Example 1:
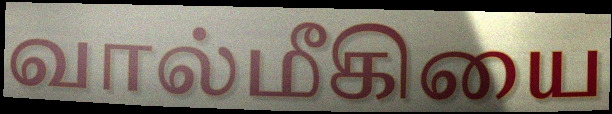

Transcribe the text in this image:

வால்மீகியை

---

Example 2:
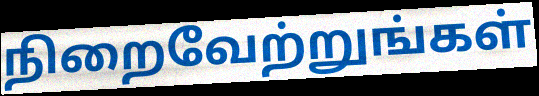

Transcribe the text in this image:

நிறைவேற்றுங்கள்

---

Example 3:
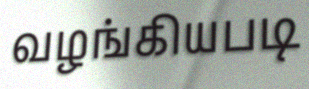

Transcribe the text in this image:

வழங்கியபடி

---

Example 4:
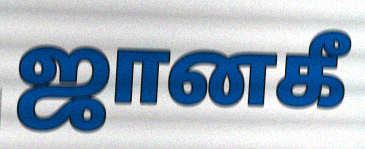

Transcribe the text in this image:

ஜானகீ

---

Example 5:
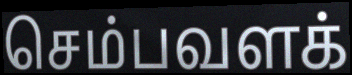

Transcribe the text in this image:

செம்பவளக்